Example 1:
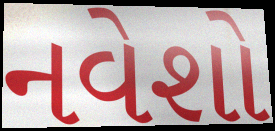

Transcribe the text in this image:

નવેશો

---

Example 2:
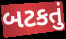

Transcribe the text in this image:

બટકતું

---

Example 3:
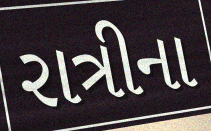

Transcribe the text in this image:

રાત્રીના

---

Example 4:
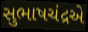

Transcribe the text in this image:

સુભાષચંદ્રએ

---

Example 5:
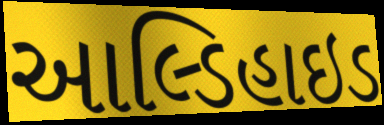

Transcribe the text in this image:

આલ્ડિહાઇડ